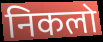
निकलो